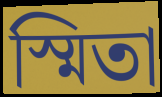
স্মিতা